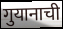
गुयानाची